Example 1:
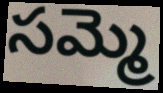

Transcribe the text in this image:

సమ్మె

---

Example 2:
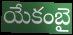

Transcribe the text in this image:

యేకంబై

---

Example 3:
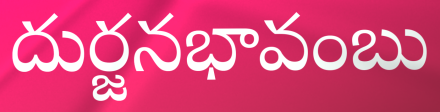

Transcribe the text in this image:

దుర్జనభావంబు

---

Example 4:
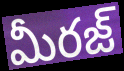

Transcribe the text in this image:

మీరజ్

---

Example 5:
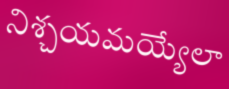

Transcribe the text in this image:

నిశ్చయమయ్యేలా